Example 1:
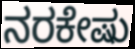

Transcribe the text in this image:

ನರಕೇಷು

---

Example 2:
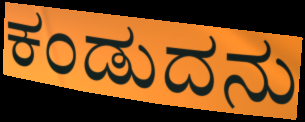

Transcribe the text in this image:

ಕಂಡುದನು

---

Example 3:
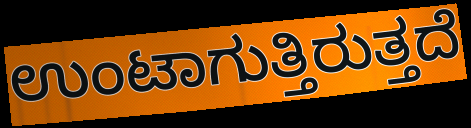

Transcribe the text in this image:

ಉಂಟಾಗುತ್ತಿರುತ್ತದೆ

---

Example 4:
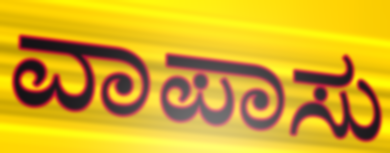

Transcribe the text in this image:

ವಾಪಾಸು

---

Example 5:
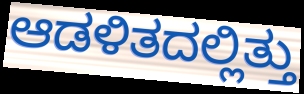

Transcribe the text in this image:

ಆಡಳಿತದಲ್ಲಿತ್ತು